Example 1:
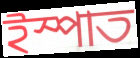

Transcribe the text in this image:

ইস্পাত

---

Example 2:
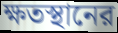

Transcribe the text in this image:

ক্ষতস্থানের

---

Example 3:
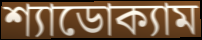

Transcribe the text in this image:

শ্যাডোক্যাম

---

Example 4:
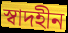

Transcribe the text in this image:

স্বাদহীন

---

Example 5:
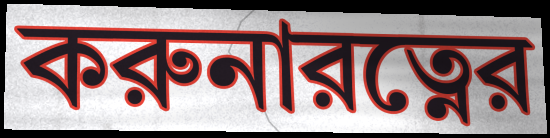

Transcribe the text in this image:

করুনারত্নের